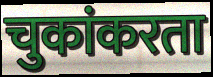
चुकांकरता